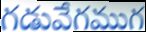
గడువేగముగ